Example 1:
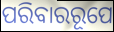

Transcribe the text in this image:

ପରିବାରରୂପେ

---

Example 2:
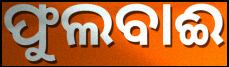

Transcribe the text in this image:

ଫୁଲବାଈ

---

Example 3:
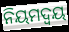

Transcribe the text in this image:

ନିୟମଦ୍ୱୟ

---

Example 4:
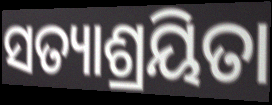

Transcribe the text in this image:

ସତ୍ୟାଶ୍ରୟିତା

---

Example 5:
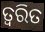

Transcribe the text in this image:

ତ୍ବରିତ